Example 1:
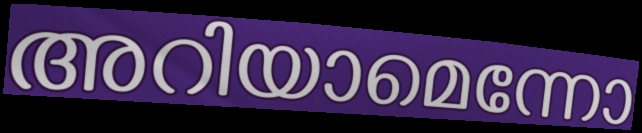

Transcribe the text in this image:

അറിയാമെന്നോ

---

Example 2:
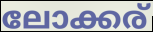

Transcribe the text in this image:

ലോക്കര്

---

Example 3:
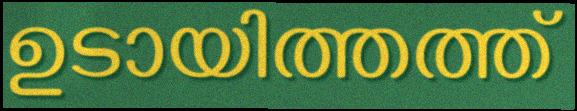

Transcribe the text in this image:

ഉടായിത്തത്ത്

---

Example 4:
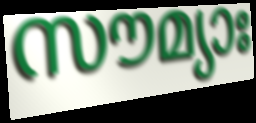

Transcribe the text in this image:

സൗമ്യാഃ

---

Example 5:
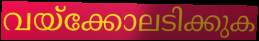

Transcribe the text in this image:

വയ്ക്കോലടിക്കുക